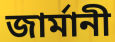
জাৰ্মানী